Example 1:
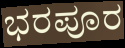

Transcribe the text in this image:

ಭರಪೂರ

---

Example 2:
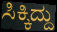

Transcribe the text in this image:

ಸಿಕ್ಕಿದ್ದು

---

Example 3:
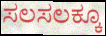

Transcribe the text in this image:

ಸಲಸಲಕ್ಕೂ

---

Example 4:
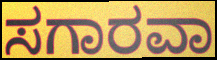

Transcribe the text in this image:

ಸಗಾರವಾ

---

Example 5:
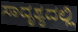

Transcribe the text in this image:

ಸಾದೃಶ್ಯದಲ್ಲಿ